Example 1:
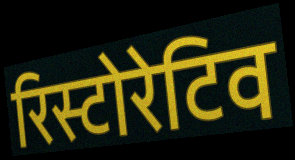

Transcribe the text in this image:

रिस्टोरेटिव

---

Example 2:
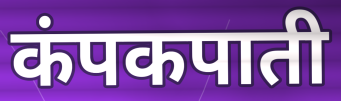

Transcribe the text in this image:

कंपकपाती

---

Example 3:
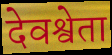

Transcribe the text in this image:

देवश्वेता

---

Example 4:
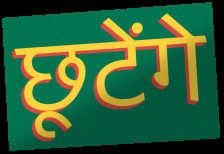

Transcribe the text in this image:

छूटेंगे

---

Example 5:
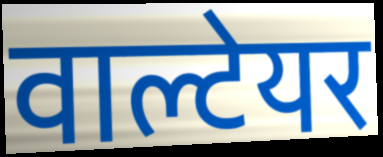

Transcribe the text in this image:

वाल्टेयर